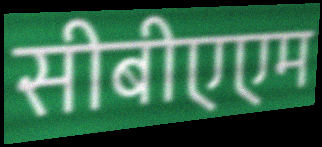
सीबीएएम